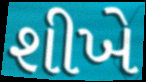
શીખે